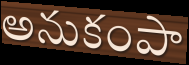
అనుకంపా